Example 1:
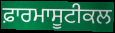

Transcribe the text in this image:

ਫ਼ਾਰਮਾਸੂਟੀਕਲ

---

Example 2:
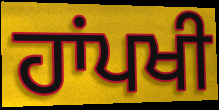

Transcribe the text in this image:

ਹਾਂਪਖੀ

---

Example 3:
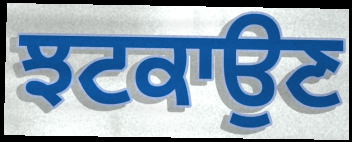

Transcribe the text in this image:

ਝਟਕਾਉਣ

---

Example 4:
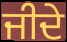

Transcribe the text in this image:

ਜੀਦੇ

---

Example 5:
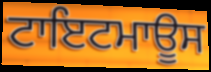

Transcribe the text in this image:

ਟਾਇਟਮਾਊਸ